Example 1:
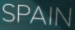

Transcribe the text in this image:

SPAIN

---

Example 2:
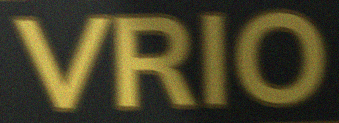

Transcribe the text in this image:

VRIO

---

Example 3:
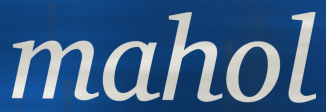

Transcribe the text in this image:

mahol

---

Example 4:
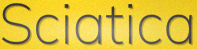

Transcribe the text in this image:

Sciatica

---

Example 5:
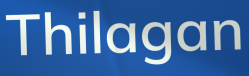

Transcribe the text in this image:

Thilagan